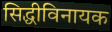
सिद्धीविनायक